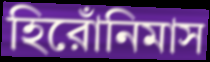
হিরোঁনিমাস